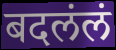
बदलंलं